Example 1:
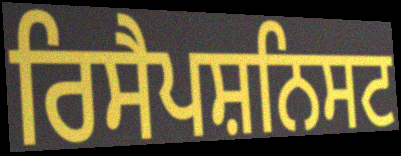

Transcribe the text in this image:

ਰਿਸੈਪਸ਼ਨਿਸਟ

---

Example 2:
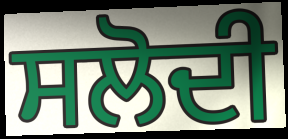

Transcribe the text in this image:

ਸਲੋਦੀ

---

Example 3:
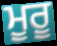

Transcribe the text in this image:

ਮੂਰੂ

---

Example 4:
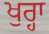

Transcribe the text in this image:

ਖੁਰ੍ਹਾ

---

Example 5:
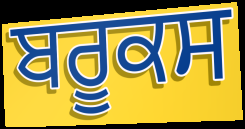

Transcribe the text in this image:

ਬਰੂਕਸ